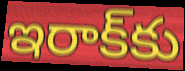
ఇరాక్‌కు